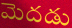
మెదడు